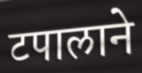
टपालाने